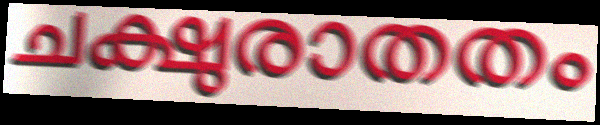
ചക്ഷുരാതതം